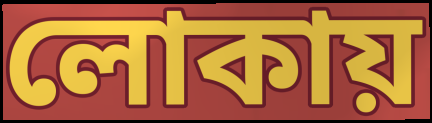
লোকায়